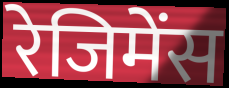
रेजिमेंस